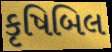
કૃષિબિલ